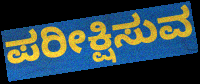
ಪರೀಕ್ಷಿಸುವ